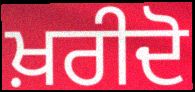
ਖ਼ਰੀਦੋ